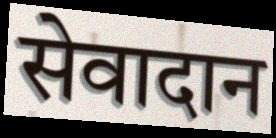
सेवादान